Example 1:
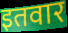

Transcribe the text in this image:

इतवार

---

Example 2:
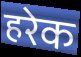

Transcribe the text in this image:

हरेक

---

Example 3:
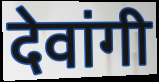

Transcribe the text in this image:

देवांगी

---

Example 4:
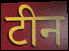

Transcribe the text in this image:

टीन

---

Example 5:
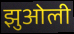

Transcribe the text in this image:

झुओली